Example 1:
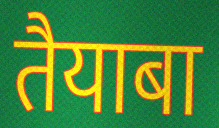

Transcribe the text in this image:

तैयाबा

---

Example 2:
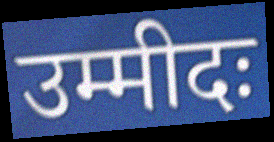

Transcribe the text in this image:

उम्मीदः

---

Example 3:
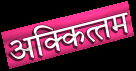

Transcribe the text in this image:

अक्‍कित्‍तम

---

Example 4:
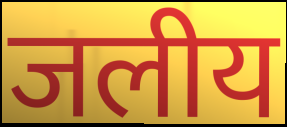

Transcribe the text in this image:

जलीय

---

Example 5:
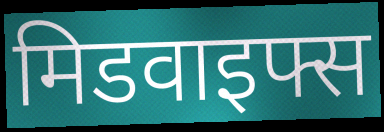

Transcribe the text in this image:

मिडवाइफ्स